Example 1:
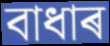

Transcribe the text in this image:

বাধাৰ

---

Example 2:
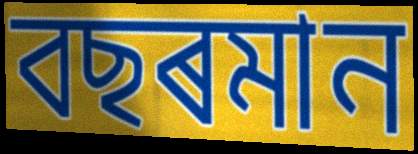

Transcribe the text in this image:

বছৰমান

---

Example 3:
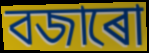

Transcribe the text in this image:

বজাৰো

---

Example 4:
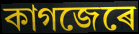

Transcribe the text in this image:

কাগজেৰে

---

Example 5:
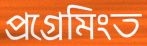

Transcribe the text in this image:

প্ৰগ্ৰেমিংত